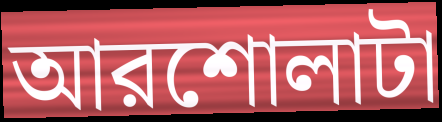
আরশোলাটা